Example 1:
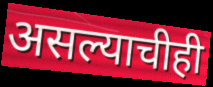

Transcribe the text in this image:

असल्याचीही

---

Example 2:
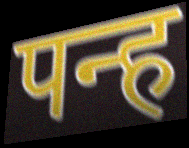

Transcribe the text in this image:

पन्ह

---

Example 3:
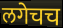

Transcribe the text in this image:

लगेचच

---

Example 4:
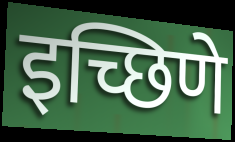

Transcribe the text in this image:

इच्छिणे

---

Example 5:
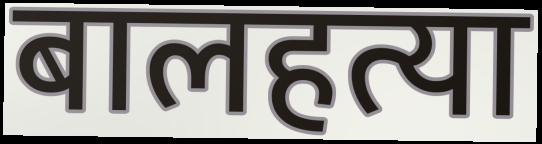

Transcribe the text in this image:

बालहत्या